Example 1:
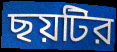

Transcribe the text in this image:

ছয়টির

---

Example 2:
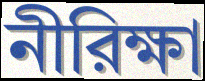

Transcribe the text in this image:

নীরিক্ষা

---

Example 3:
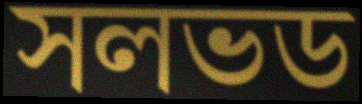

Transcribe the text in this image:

সলভড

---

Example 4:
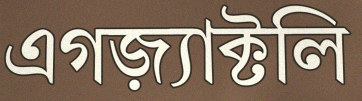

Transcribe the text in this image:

এগজ়্যাক্টলি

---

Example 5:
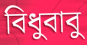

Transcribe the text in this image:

বিধুবাবু